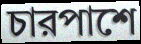
চারপাশে